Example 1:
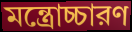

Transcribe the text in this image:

মন্ত্রোচ্চারণ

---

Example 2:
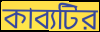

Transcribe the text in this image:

কাব্যটির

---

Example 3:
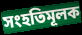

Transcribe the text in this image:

সংহতিমূলক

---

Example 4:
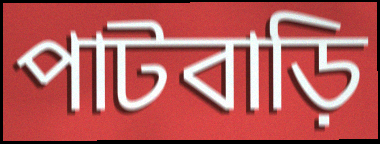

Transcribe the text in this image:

পাটবাড়ি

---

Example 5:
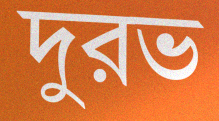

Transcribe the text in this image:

দুরভ